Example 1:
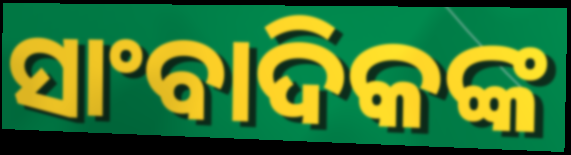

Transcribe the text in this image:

ସାଂବାଦିକଙ୍କ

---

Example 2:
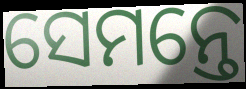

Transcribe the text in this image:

ସେମନ୍ତେ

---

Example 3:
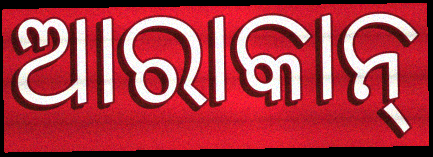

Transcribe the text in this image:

ଆରାକାନ୍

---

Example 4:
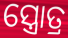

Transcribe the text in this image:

ସ୍ତ୍ରୋତ୍ର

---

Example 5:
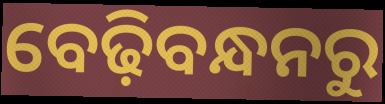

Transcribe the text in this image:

ବେଢ଼ିବନ୍ଧନରୁ